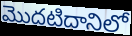
మొదటిదానిలో